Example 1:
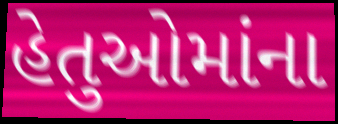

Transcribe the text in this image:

હેતુઓમાંના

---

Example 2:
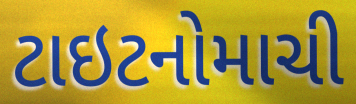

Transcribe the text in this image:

ટાઇટનોમાચી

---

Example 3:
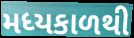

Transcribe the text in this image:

મધ્યકાળથી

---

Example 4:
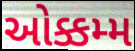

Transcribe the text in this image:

ઓક્કમ્મ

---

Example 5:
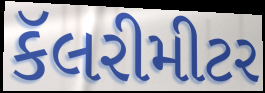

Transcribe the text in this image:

કૅલરીમીટર